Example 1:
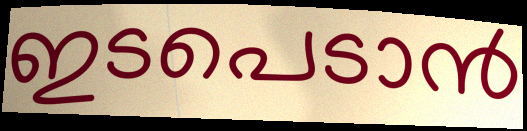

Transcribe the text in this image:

ഇടപെടാൻ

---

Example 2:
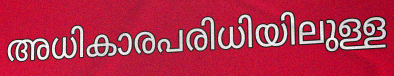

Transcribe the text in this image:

അധികാരപരിധിയിലുള്ള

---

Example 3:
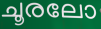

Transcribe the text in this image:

ചൂരലോ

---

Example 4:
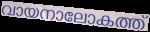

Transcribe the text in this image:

വായനാലോകത്ത്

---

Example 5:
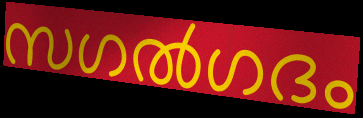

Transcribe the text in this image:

സഗൽഗദം